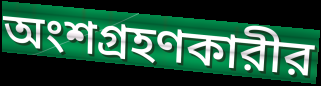
অংশগ্রহণকারীর